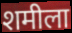
शमीला